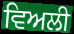
ਵਿਅਲੀ